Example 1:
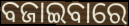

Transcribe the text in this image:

ବଜାଇବାରେ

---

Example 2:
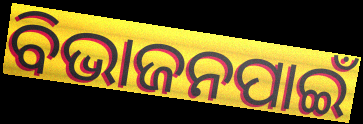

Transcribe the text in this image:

ବିଭାଜନପାଇଁ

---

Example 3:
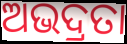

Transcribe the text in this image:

ଅଭଦ୍ରତା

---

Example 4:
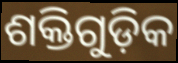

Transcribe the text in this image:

ଶକ୍ତିଗୁଡ଼ିକ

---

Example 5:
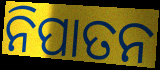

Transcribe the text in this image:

ନିପାତନ